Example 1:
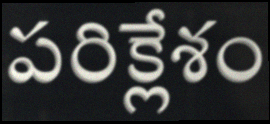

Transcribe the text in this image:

పరిక్లేశం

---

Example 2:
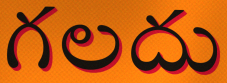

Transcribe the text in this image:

గలదు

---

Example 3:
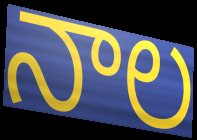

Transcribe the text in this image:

నాల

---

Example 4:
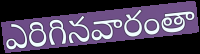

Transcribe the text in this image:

ఎరిగినవారంతా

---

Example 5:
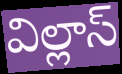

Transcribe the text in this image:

విల్లాస్